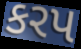
કરપ